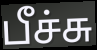
பீச்சு